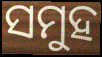
ସମୁହ